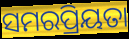
ସମରପ୍ରିୟତା